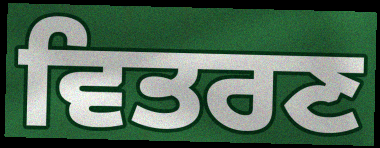
ਵਿਤਰਣ